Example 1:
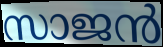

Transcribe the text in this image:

സാജൻ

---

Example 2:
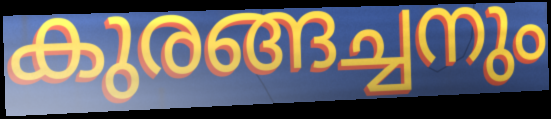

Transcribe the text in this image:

കുരങ്ങച്ചനും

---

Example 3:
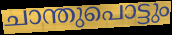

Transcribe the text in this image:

ചാന്തുപൊട്ടും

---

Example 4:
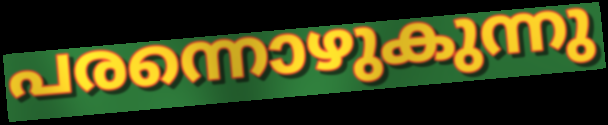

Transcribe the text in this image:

പരന്നൊഴുകുന്നു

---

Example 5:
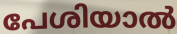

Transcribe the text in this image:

പേശിയാൽ